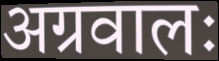
अग्रवालः